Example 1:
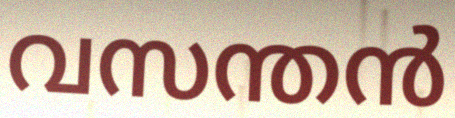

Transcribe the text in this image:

വസന്തൻ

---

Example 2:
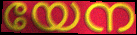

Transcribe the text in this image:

യേന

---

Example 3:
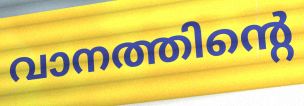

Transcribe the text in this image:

വാനത്തിന്റെ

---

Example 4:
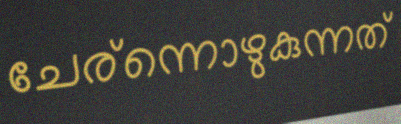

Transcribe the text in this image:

ചേര്ന്നൊഴുകുന്നത്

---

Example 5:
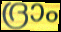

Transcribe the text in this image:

ദ്രാം